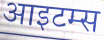
आइटम्स